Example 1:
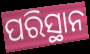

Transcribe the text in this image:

ପରିସ୍ଥାନ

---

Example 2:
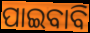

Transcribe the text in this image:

ପାଇବାବି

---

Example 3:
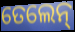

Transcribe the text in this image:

ତେଲେନ୍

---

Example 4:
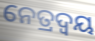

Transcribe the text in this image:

ନେତ୍ରଦ୍ଵୟ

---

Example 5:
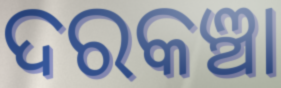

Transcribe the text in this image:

ଦରକଞ୍ଚା